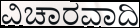
ವಿಚಾರವಾದಿ